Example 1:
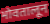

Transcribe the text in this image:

भोवतालून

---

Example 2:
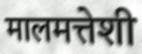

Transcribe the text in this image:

मालमत्तेशी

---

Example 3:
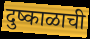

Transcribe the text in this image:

दुष्काळाची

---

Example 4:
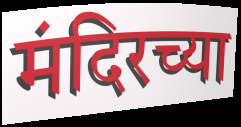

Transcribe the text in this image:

मंदिरच्या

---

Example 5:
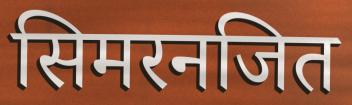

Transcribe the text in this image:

सिमरनजित